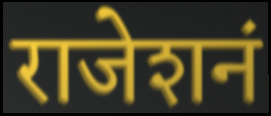
राजेशनं